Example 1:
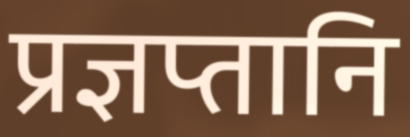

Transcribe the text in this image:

प्रज्ञप्तानि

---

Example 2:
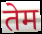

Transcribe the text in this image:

तेम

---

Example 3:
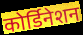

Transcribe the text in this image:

कोर्डिनेशन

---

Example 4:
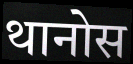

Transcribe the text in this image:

थानोस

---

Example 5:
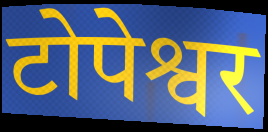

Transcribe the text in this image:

टोपेश्वर